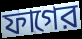
ফাগের